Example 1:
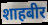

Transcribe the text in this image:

शाहबीर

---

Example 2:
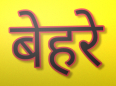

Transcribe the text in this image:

बेहरे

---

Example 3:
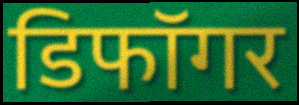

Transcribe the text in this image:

डिफॉगर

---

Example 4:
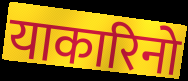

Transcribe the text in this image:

याकारिनो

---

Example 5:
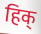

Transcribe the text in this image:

हिक्